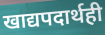
खाद्यपदार्थही